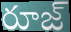
రూజ్